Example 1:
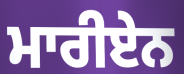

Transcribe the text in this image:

ਮਾਰੀਏਨ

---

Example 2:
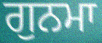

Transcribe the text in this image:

ਗੁਨਮਾ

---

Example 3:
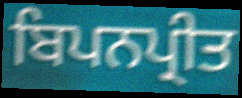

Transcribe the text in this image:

ਬਿਪਨਪ੍ਰੀਤ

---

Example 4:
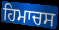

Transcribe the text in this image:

ਹਿਮਾਚਸ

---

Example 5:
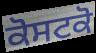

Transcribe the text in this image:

ਕੋਸਟਕੋ